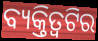
ବ୍ୟକ୍ତିତ୍ୱଟିର